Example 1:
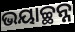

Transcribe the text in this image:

ଭୟାଚ୍ଛନ୍ନ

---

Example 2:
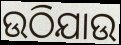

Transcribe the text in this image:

ଉଠିଯାଉ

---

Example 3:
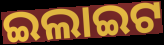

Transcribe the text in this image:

ଇଲାଇଟ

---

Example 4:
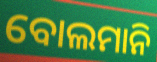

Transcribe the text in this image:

ବୋଲମାନି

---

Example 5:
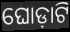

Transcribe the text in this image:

ଘୋଡ଼ାଟି